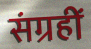
संग्रहीं